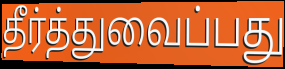
தீர்த்துவைப்பது